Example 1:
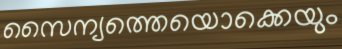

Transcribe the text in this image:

സൈന്യത്തെയൊക്കെയും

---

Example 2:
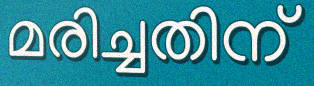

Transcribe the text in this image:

മരിച്ചതിന്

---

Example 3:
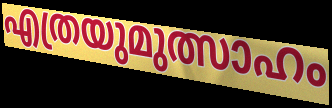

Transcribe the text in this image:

എത്രയുമുത്സാഹം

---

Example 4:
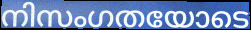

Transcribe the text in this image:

നിസംഗതയോടെ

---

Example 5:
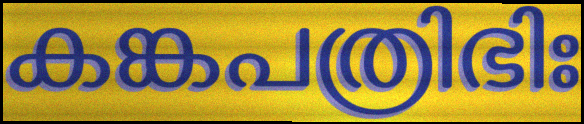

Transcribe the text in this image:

കങ്കപത്രിഭിഃ